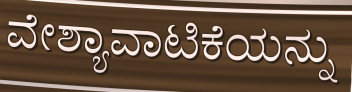
ವೇಶ್ಯಾವಾಟಿಕೆಯನ್ನು